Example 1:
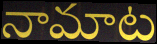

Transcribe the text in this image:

నామాట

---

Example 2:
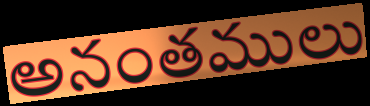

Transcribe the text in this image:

అనంతములు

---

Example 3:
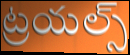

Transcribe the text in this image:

ట్రయల్స్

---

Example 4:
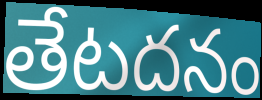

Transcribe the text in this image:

తేటదనం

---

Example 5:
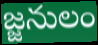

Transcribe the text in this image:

జ్జనులం